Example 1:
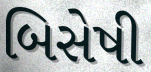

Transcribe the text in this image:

બિસેષી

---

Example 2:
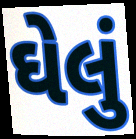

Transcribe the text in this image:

ઘેલું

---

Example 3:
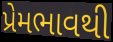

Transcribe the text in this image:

પ્રેમભાવથી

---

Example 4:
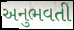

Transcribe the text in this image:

અનુભવતી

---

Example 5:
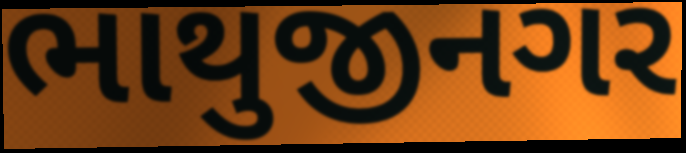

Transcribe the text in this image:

ભાથુજીનગર